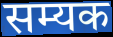
सम्‍यक